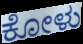
ಕೋಳು